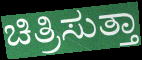
ಚಿತ್ರಿಸುತ್ತಾ